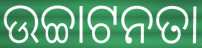
ଉଚ୍ଚାଟନତା